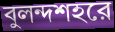
বুলন্দশহরে